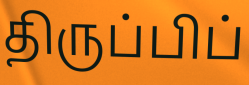
திருப்பிப்